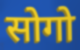
सोगो